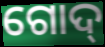
ଗୋଦ୍